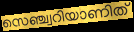
സെഞ്ച്വറിയാണിത്